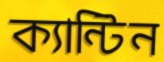
ক্যান্টিন